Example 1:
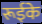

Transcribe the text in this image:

रूईके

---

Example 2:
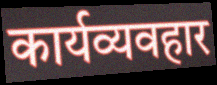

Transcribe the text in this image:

कार्यव्यवहार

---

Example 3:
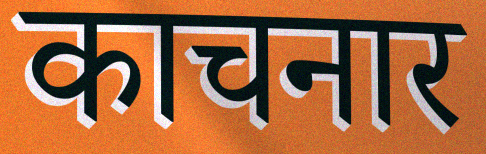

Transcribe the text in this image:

काचनार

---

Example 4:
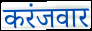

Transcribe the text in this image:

करंजवार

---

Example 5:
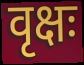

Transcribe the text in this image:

वृक्षः